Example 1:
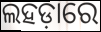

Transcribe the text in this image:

ଲହଡ଼ାରେ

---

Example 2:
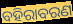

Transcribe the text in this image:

ବହିରାବରଣ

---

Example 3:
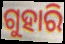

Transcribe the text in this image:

ଗୁହାରି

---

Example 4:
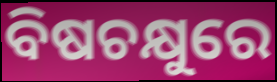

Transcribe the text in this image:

ବିଷଚକ୍ଷୁରେ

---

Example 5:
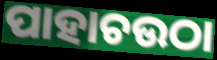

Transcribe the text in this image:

ପାହାଚଉଠା